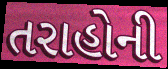
તરાહોની